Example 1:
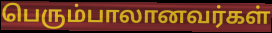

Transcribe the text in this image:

பெரும்பாலானவர்கள்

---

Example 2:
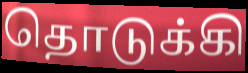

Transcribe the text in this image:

தொடுக்கி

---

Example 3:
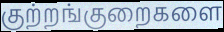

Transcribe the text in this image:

குற்றங்குறைகளை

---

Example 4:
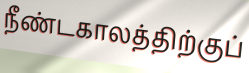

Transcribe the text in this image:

நீண்டகாலத்திற்குப்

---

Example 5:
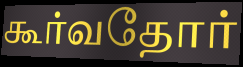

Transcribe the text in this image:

கூர்வதோர்